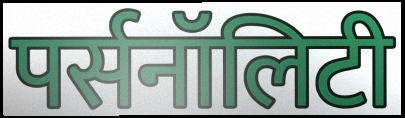
पर्सनॉलिटी